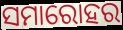
ସମାରୋହର